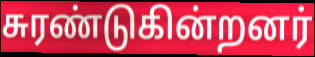
சுரண்டுகின்றனர்